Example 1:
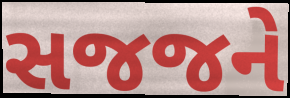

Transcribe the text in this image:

સજજને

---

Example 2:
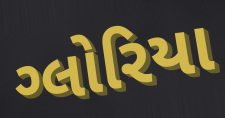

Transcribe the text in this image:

ગ્લોરિયા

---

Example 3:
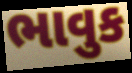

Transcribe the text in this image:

ભાવુક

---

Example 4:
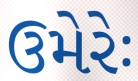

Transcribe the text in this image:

ઉમેરેઃ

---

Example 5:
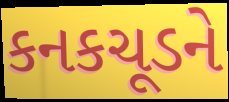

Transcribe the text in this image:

કનકચૂડને